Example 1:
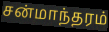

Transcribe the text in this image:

சன்மாந்தரம்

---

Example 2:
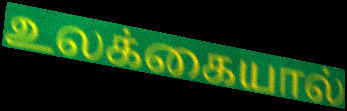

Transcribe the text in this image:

உலக்கையால்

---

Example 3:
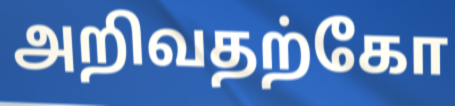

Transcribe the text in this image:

அறிவதற்கோ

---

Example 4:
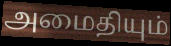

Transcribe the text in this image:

அமைதியும்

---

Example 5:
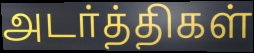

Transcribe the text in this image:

அடர்த்திகள்